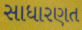
સાધારણત